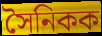
সৈনিকক